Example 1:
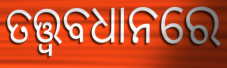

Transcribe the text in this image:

ତତ୍ତ୍ଵବଧାନରେ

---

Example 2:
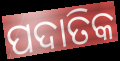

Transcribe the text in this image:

ପଦାତିକ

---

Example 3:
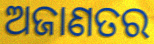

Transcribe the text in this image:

ଅଜାଣତର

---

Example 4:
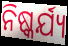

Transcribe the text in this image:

ନିଷ୍କର୍ଯ୍ୟ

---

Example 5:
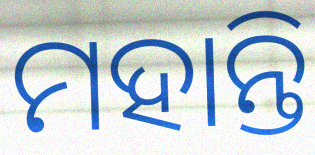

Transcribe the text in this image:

ମହାନ୍ତି